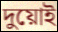
দুয়োই